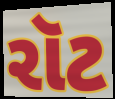
રૉટ